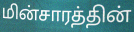
மின்சாரத்தின்